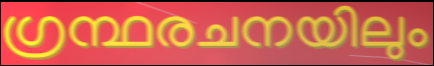
ഗ്രന്ഥരചനയിലും